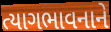
ત્યાગભાવનાને